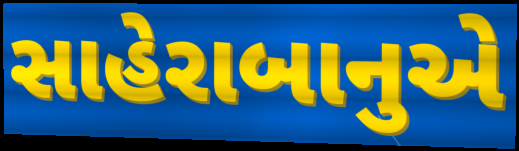
સાહેરાબાનુએ